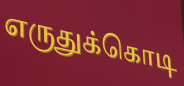
எருதுக்கொடி